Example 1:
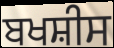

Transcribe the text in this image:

ਬਖਸ਼ੀਸ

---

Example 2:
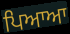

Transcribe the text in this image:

ਪਿਆਆ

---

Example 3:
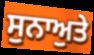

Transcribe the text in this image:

ਸੁਨਾਅੁਤੇ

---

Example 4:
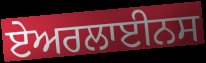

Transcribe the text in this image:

ਏਅਰਲਾਈਨਸ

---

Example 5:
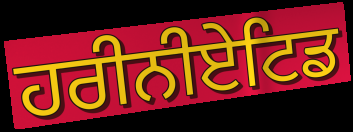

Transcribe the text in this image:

ਹਰੀਨੀਏਟਿਡ